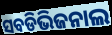
ସବଡିଭିଜନାଲ